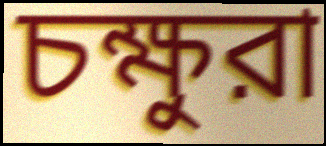
চক্ষুরা